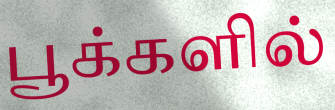
பூக்களில்